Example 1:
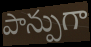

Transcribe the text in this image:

పాన్పుగా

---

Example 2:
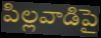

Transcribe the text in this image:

పిల్లవాడిపై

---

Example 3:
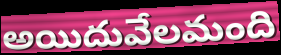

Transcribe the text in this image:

అయిదువేలమంది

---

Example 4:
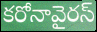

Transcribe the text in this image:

కరోనావైరస్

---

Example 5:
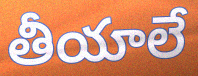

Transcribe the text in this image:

తీయాలే